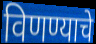
विणण्याचे